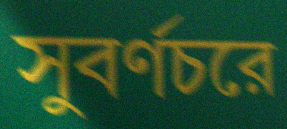
সুবর্ণচরে